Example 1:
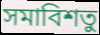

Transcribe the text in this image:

সমাবিশতু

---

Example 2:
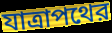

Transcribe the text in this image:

যাত্রাপথের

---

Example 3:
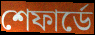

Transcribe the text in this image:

শেফার্ডে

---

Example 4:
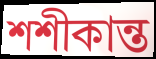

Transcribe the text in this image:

শশীকান্ত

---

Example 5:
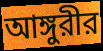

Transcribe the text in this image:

আঙ্গুরীর